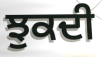
ਝੁਕਦੀ